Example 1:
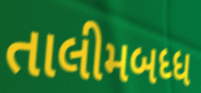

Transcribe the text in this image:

તાલીમબધ્ધ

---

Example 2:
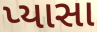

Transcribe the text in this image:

પ્યાસા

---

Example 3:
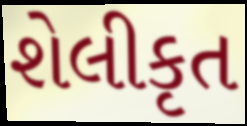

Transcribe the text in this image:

શેલીકૃત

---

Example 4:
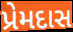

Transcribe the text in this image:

પ્રેમદાસ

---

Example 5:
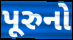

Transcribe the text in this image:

પૂરુનો